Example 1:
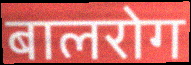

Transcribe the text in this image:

बालरोग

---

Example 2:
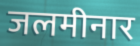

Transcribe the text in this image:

जलमीनार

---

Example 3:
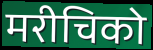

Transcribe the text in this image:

मरीचिको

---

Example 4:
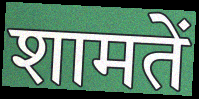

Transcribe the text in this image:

शामतें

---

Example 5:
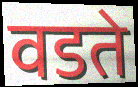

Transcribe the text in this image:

वडते